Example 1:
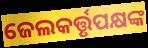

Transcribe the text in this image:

ଜେଲକର୍ତ୍ତୃପକ୍ଷଙ୍କ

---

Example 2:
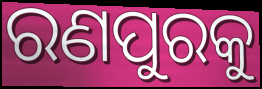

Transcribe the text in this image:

ରଣପୁରକୁ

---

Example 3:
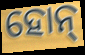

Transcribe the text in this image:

ହୋନ୍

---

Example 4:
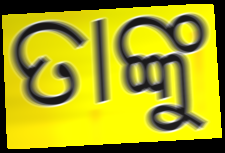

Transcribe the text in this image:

ତାଙ୍କୁ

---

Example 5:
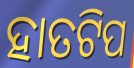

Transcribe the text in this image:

ହାତଟିପ